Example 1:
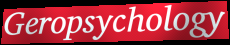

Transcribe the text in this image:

Geropsychology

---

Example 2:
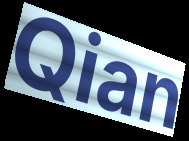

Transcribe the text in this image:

Qian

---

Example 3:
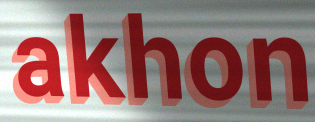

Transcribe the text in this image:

akhon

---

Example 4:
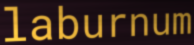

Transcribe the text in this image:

laburnum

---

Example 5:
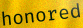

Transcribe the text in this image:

honored